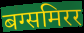
बग्समिरर